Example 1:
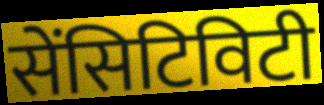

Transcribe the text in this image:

सेंसिटिविटी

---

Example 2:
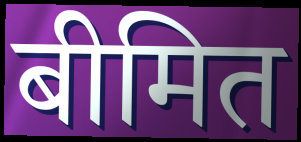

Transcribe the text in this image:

बीमित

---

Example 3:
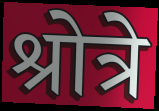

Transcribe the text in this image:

श्रोत्रे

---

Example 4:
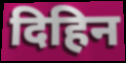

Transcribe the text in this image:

दिहिन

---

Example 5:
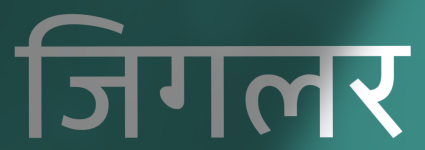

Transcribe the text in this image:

जिगलर